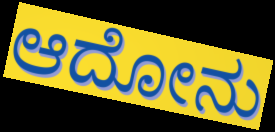
ಆದೋನು